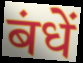
बंधें